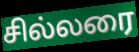
சில்லரை